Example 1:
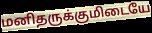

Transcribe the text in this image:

மனிதருக்குமிடையே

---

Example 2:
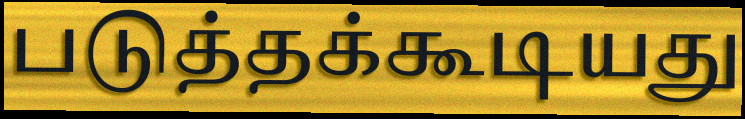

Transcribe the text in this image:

படுத்தக்கூடியது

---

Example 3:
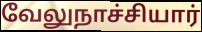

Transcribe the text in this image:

வேலுநாச்சியார்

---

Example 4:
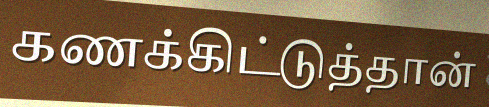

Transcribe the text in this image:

கணக்கிட்டுத்தான்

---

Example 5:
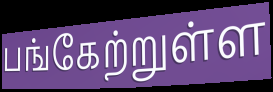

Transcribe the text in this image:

பங்கேற்றுள்ள